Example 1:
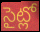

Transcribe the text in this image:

సైట్లో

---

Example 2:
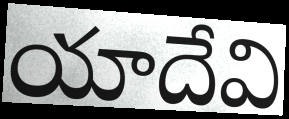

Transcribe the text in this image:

యాదేవి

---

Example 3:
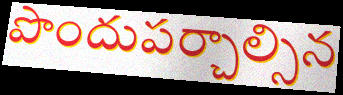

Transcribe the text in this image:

పొందుపర్చాల్సిన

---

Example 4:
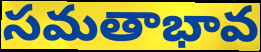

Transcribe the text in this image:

సమతాభావ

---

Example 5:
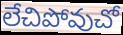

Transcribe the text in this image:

లేచిపోవుచో